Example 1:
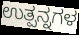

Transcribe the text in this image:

ಉತ್ಪನ್ನಗಳ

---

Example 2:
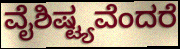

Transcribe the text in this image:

ವೈಶಿಷ್ಟ್ಯವೆಂದರೆ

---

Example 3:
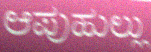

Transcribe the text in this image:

ಆಪುಹುಲ್ಲು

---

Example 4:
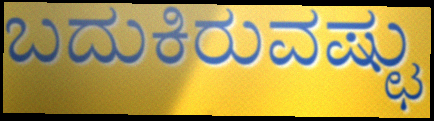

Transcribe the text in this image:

ಬದುಕಿರುವಷ್ಟು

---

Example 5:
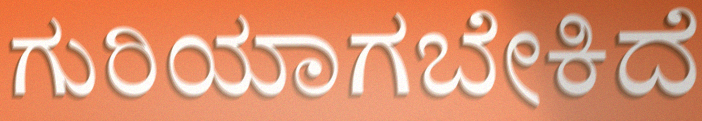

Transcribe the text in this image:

ಗುರಿಯಾಗಬೇಕಿದೆ